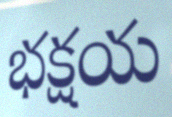
భక్షయ